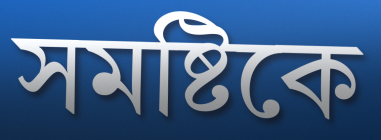
সমষ্টিকে